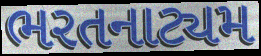
ભરતનાટ્યમ